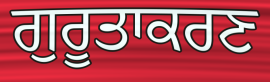
ਗੁਰੂਤਾਕਰਣ